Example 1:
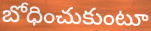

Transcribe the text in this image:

బోధించుకుంటూ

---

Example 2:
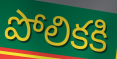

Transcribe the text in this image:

పోలికకి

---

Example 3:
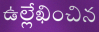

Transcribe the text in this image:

ఉల్లేఖించిన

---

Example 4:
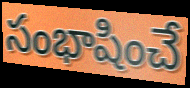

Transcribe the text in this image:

సంభాషించే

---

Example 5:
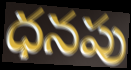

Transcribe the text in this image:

ధనపు